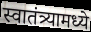
स्वातंत्र्यामध्ये